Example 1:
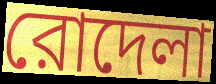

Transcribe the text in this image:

রোদেলা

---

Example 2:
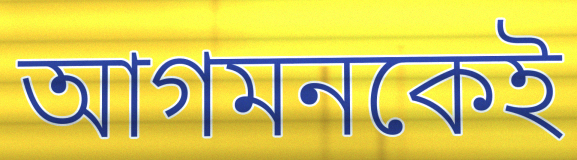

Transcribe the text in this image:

আগমনকেই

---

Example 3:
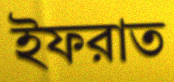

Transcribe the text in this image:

ইফরাত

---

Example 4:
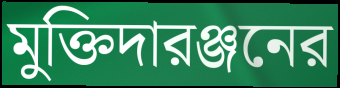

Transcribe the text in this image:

মুক্তিদারঞ্জনের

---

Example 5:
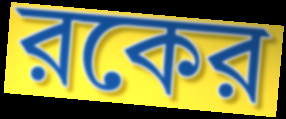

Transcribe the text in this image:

রকের